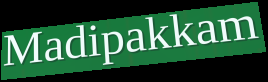
Madipakkam